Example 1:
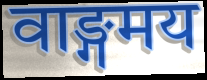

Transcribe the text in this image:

वाङ्गमय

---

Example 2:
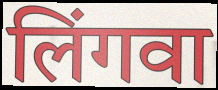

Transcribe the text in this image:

लिंगवा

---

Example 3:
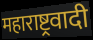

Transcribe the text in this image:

महाराष्ट्रवादी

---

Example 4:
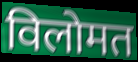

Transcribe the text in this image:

विलोमत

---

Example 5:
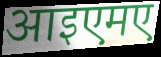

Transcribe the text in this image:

आइएमए